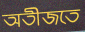
অতীজতে